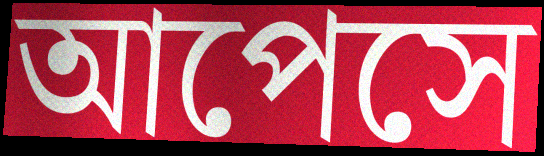
আপেসে